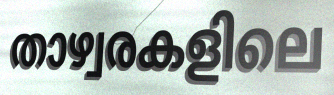
താഴ്വരകളിലെ